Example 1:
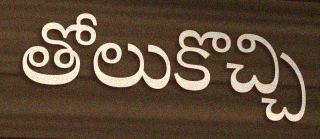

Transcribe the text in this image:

తోలుకొచ్చి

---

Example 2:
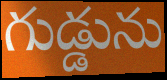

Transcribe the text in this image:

గుడ్డును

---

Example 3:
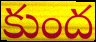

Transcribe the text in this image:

కుంద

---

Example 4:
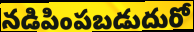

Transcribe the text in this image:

నడిపింపబడుదురో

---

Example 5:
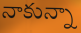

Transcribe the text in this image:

నాకున్నా